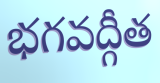
భగవద్గీత